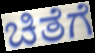
ಚಿತೆಗೆ